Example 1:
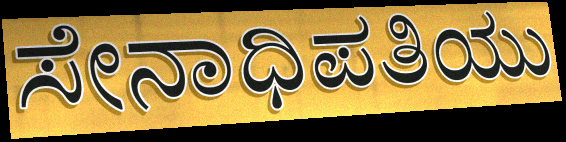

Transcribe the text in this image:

ಸೇನಾಧಿಪತಿಯು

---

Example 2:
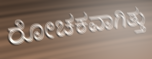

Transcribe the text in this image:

ರೋಚಕವಾಗಿತ್ತು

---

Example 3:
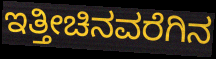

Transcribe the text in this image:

ಇತ್ತೀಚಿನವರೆಗಿನ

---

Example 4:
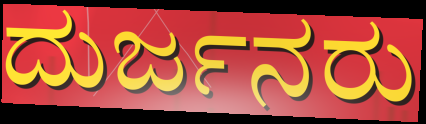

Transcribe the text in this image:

ದುರ್ಜನರು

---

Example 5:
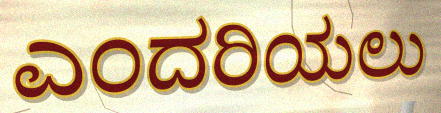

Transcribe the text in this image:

ಎಂದರಿಯಲು